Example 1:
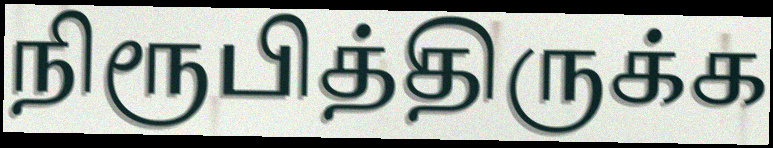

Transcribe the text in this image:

நிரூபித்திருக்க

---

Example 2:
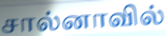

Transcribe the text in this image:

சால்னாவில்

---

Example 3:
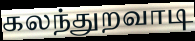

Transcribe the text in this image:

கலந்துறவாடி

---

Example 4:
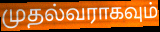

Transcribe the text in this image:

முதல்வராகவும்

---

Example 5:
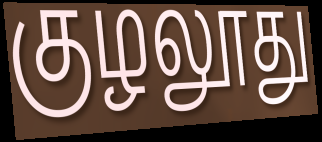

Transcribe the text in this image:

குழலூது